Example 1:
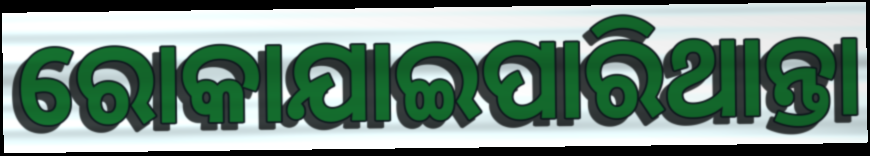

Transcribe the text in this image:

ରୋକାଯାଇପାରିଥାନ୍ତା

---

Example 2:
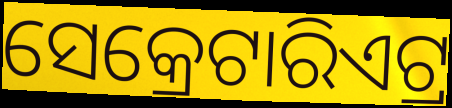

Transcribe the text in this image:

ସେକ୍ରେଟାରିଏଟ୍ର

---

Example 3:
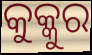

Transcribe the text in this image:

କୁକ୍କୁର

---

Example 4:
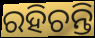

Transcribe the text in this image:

ରହିଚନ୍ତି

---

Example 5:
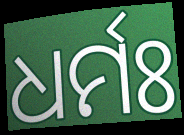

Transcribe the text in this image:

ଧର୍ମଃ